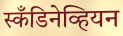
स्कँडिनेव्हियन